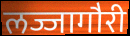
लज्जागौरी